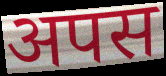
अपस